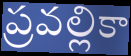
ప్రవల్లికా